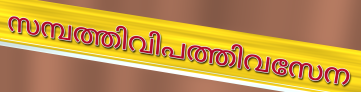
സമ്പത്തിവിപത്തിവസേന